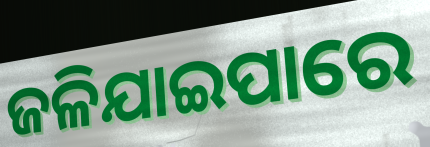
ଜଳିଯାଇପାରେ